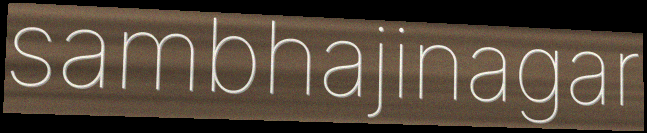
sambhajinagar